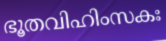
ഭൂതവിഹിംസകഃ